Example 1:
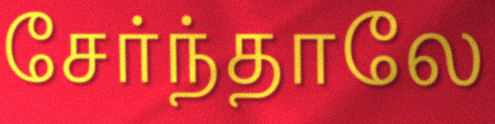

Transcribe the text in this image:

சேர்ந்தாலே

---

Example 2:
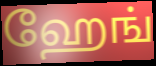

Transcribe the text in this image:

ஹேங்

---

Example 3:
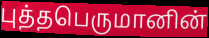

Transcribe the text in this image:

புத்தபெருமானின்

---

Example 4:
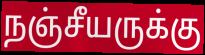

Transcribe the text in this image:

நஞ்சீயருக்கு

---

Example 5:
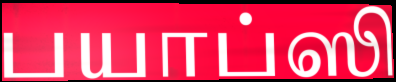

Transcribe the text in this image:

பயாப்ஸி